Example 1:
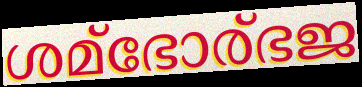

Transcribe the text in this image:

ശമ്ഭോര്ഭജ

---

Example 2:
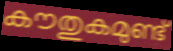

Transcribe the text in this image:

കൗതുകമുണ്ട്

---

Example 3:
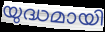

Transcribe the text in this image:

യുദ്ധമായി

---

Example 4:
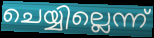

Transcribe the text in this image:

ചെയ്യില്ലെന്ന്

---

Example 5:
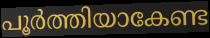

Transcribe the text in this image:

പൂർത്തിയാകേണ്ട